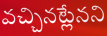
వచ్చినట్లేనని